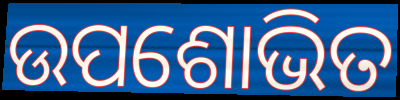
ଉପଶୋଭିତ